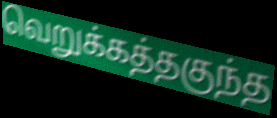
வெறுக்கத்தகுந்த